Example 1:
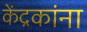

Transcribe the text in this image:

केंद्रकांना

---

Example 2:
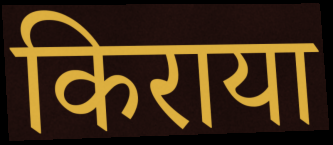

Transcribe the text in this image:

किराया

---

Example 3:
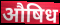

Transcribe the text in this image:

औषिध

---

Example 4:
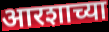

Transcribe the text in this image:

आरशाच्या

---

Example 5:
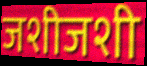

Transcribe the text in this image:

जशीजशी